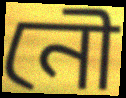
নৌ